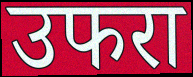
उफरा